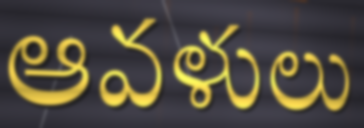
ఆవళులు